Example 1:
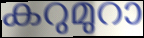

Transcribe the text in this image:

കറുമുറാ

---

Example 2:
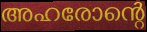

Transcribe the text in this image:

അഹരോന്റെ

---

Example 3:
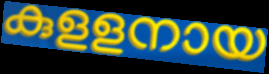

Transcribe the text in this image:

കുളളനായ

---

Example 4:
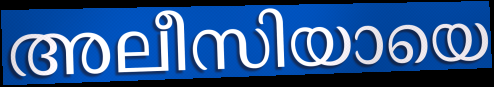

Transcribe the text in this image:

അലീസിയായെ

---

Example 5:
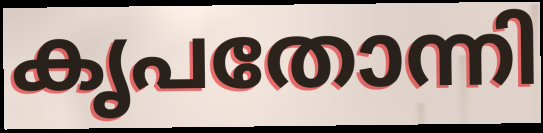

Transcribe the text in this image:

കൃപതോന്നി